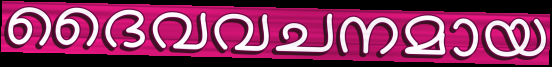
ദൈവവചനമായ